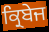
ਕ੍ਰਿਬੇਜ